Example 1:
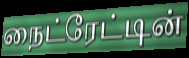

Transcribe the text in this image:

நைட்ரேட்டின்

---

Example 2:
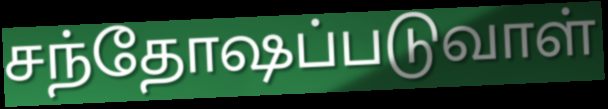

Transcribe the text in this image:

சந்தோஷப்படுவாள்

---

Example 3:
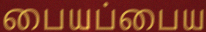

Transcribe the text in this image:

பையப்பைய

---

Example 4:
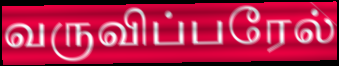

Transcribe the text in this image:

வருவிப்பரேல்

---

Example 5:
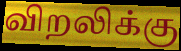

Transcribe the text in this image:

விறலிக்கு